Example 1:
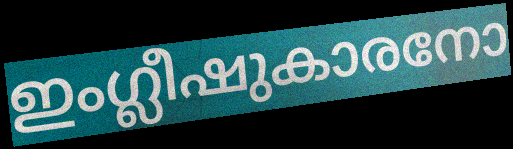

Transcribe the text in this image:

ഇംഗ്ലീഷുകാരനോ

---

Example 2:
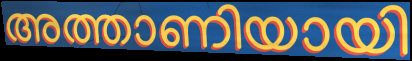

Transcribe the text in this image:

അത്താണിയായി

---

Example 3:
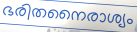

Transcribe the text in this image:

ഭരിതനൈരാശ്യം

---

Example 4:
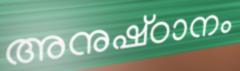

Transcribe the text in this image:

അനുഷ്‌ഠാനം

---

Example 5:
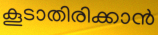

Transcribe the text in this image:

കൂടാതിരിക്കാൻ